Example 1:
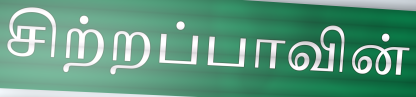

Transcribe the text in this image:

சிற்றப்பாவின்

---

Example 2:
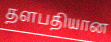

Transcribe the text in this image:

தளபதியான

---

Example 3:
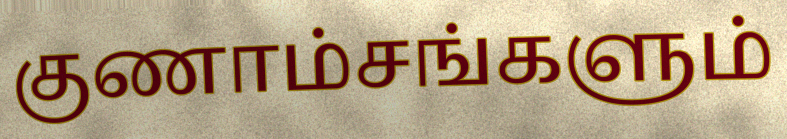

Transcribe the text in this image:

குணாம்சங்களும்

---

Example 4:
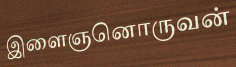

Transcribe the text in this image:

இளைஞனொருவன்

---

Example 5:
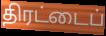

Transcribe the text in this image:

திரட்டைப்